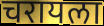
चरायला